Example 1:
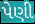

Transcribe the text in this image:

પેણી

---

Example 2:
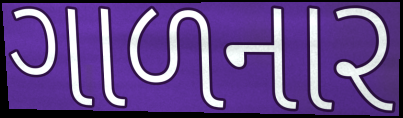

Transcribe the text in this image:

ગાળનાર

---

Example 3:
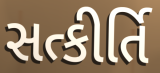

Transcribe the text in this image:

સત્કીર્તિ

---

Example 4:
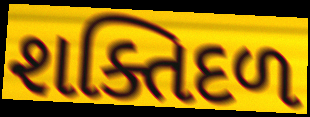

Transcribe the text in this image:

શક્તિદળ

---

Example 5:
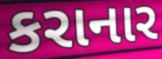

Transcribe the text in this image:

કરાનાર